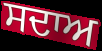
ਸਦਾਅ